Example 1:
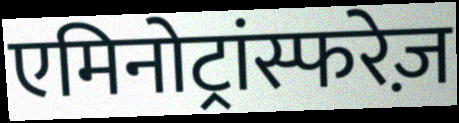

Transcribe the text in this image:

एमिनोट्रांस्फरेज़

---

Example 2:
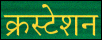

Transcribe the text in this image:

क्रस्टेशन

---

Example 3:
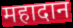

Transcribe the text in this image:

महादान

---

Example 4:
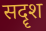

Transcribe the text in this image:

सदॄश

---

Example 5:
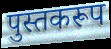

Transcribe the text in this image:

पुस्तकरूप